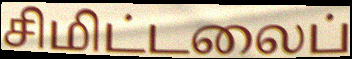
சிமிட்டலைப்